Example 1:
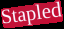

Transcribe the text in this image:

Stapled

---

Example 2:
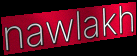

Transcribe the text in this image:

nawlakh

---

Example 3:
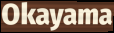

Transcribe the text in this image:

Okayama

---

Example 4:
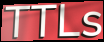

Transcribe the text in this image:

TTLs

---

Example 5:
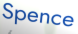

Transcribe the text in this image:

Spence